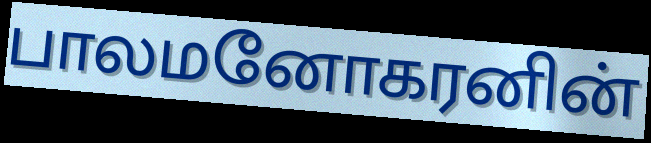
பாலமனோகரனின்